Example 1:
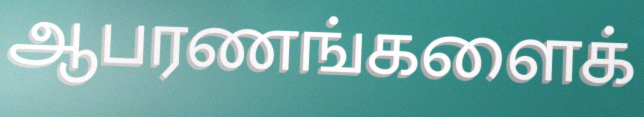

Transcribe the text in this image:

ஆபரணங்களைக்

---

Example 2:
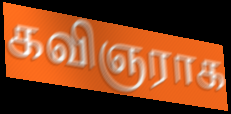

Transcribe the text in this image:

கவிஞராக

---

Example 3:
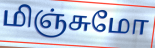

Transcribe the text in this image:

மிஞ்சுமோ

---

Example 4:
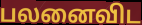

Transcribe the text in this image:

பலனைவிட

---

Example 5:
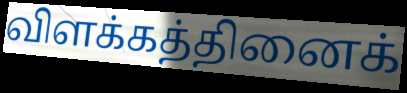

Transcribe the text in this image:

விளக்கத்தினைக்